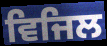
ਵਿਜਿਲ